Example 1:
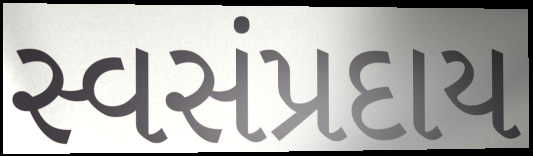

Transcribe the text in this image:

સ્વસંપ્રદાય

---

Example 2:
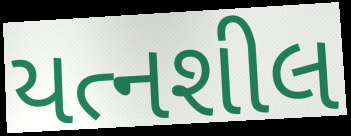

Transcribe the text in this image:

યત્નશીલ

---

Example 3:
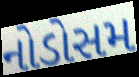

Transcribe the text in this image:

નોડોસમ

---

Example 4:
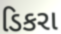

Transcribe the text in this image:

ડિકરા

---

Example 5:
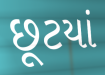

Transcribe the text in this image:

છૂટયાં